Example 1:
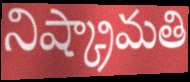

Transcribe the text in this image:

నిష్క్రామతి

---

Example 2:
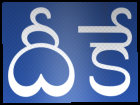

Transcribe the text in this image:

దీకే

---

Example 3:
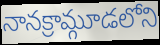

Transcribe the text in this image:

నానక్రామ్గూడలోని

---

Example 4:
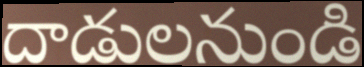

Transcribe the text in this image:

దాడులనుండి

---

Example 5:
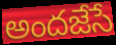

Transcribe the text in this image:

అందజేసే